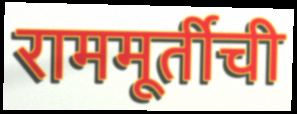
राममूर्तीची